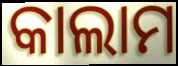
କାଲାମ